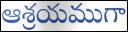
ఆశ్రయముగా